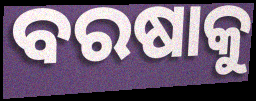
ବରଷାକୁ